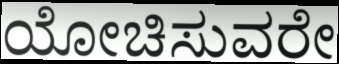
ಯೋಚಿಸುವರೇ